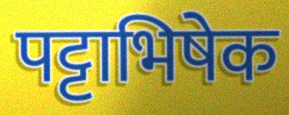
पट्टाभिषेक